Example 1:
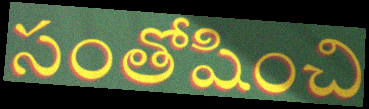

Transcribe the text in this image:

సంతోషించి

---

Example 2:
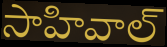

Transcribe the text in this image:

సాహివాల్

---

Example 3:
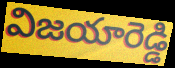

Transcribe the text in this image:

విజయారెడ్డి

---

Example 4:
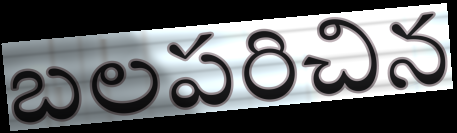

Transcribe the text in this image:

బలపరిచిన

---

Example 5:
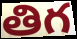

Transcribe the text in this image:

తిగ